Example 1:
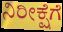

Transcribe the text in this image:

ನಿರೀಕ್ಷೆಗೆ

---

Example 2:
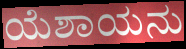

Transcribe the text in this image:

ಯೆಶಾಯನು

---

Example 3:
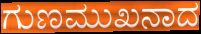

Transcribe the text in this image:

ಗುಣಮುಖನಾದ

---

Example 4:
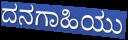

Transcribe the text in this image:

ದನಗಾಹಿಯು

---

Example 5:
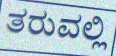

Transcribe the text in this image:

ತರುವಲ್ಲಿ